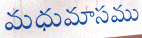
మధుమాసము